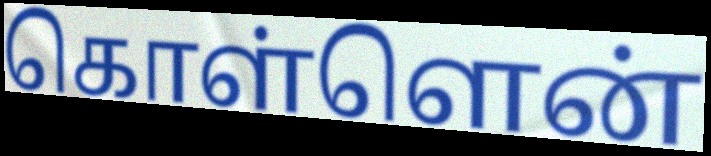
கொள்ளென்